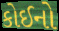
કોઈનો